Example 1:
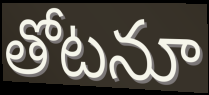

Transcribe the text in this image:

తోటనూ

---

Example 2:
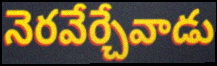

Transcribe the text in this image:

నెరవేర్చేవాడు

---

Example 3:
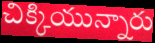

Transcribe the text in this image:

చిక్కియున్నారు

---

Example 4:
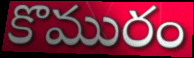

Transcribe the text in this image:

కొమురం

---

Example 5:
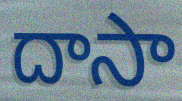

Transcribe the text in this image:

దాసా